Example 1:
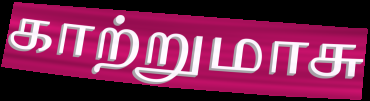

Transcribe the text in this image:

காற்றுமாசு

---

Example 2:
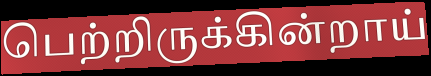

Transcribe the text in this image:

பெற்றிருக்கின்றாய்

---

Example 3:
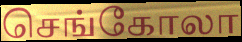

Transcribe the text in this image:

செங்கோலா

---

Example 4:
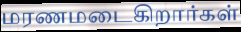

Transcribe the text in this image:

மரணமடைகிறார்கள்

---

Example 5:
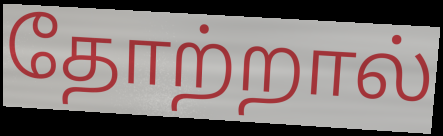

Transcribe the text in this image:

தோற்றால்